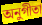
অনুগীতা